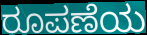
ರೂಪಣೆಯ